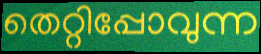
തെറ്റിപ്പോവുന്ന